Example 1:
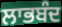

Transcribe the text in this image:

ਲਾਭਬੰਦ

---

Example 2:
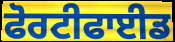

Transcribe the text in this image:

ਫੋਰਟੀਫਾਈਡ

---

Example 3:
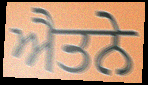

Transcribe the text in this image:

ਐਤਨੇ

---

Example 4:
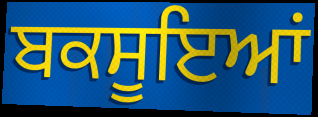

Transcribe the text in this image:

ਬਕਸੂਇਆਂ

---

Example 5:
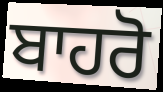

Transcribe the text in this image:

ਬਾਹਰੋ